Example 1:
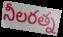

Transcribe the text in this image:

నీలరత్న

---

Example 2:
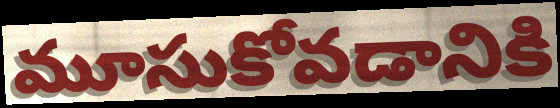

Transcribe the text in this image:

మూసుకోవడానికి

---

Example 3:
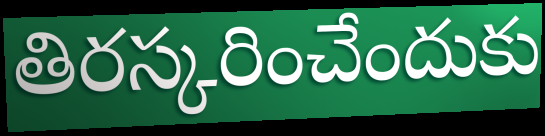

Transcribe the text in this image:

తిరస్కరించేందుకు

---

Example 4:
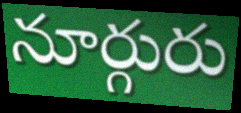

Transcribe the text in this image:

నూర్గురు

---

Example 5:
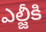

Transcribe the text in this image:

ఎల్జీకి